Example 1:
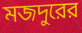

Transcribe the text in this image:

মজদুরের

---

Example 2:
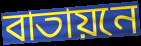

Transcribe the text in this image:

বাতায়নে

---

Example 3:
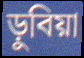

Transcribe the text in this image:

ড়ুবিয়া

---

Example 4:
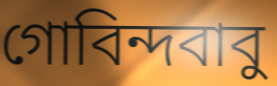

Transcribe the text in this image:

গোবিন্দবাবু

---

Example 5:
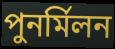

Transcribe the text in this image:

পুনর্মিলন